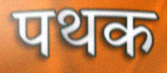
पथक